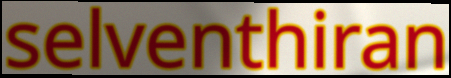
selventhiran